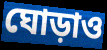
ঘোড়াও